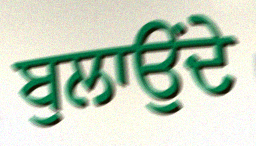
ਬੁਲਾਉਂਦੇ